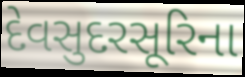
દેવસુદરસૂરિના